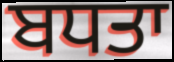
ਬਧਤਾ